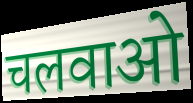
चलवाओ